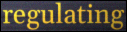
regulating